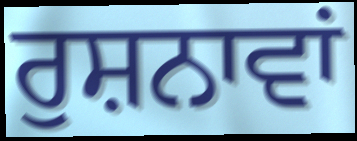
ਰੁਸ਼ਨਾਵਾਂ